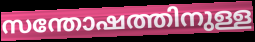
സന്തോഷത്തിനുള്ള